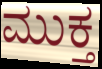
ಮುಕ್ತ